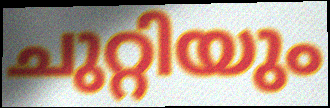
ചുറ്റിയും